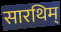
सारथिम्